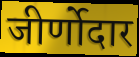
जीर्णोदार